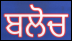
ਬਲੋਚ